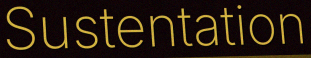
Sustentation